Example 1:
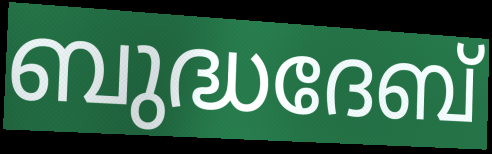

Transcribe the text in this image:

ബുദ്ധദേബ്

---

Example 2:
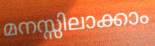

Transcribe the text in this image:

മനസ്സിലാക്കാം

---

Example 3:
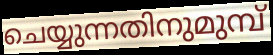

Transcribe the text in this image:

ചെയ്യുന്നതിനുമുമ്പ്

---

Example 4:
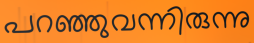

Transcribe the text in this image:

പറഞ്ഞുവന്നിരുന്നു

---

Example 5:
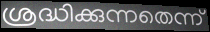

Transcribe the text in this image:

ശ്രദ്ധിക്കുന്നതെന്ന്